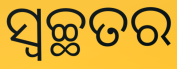
ସ୍ଵଚ୍ଛତର